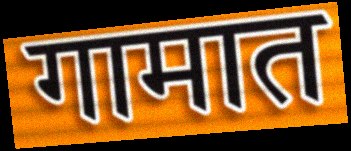
गामात